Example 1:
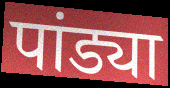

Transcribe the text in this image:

पांड्या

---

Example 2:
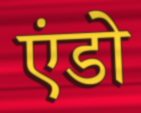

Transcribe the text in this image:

एंडो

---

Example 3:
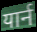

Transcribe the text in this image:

यार्न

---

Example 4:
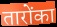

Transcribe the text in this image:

तारोंका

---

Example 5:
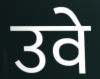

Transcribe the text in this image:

उवे